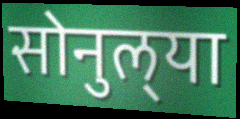
सोनुल्या